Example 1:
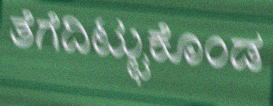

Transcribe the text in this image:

ತೆಗೆದಿಟ್ಟುಕೊಂಡ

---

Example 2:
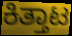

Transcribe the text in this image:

ಕಿತ್ತಾಟ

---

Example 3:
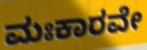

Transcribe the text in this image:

ಮಃಕಾರವೇ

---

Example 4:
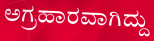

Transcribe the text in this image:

ಅಗ್ರಹಾರವಾಗಿದ್ದು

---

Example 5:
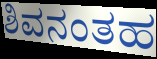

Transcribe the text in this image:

ಶಿವನಂತಹ